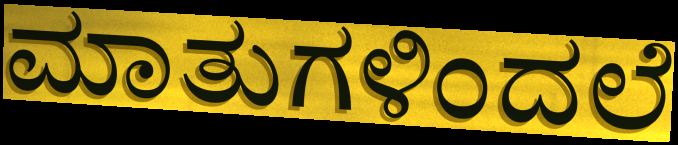
ಮಾತುಗಳಿಂದಲೆ